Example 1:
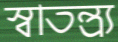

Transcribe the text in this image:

স্বাতন্ত্র্য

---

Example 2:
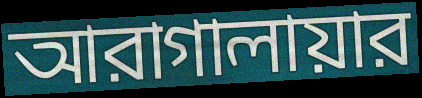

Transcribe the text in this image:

আরাগালায়ার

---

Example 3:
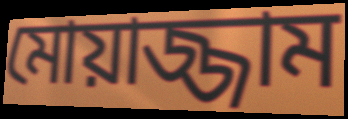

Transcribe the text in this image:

মোয়াজ্জাম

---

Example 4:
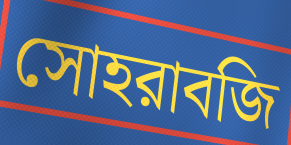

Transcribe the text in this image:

সোহরাবজি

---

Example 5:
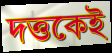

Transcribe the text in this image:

দত্তকেই